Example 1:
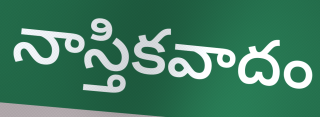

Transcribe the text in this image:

నాస్తికవాదం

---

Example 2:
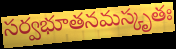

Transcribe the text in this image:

సర్వభూతనమస్కృతః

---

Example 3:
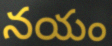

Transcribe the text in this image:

నయం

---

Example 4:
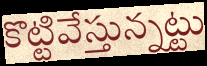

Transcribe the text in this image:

కొట్టివేస్తున్నట్టు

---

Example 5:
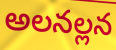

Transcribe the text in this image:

అలనల్లన